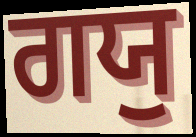
ਗਯੁ